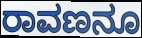
ರಾವಣನೂ